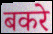
बकरे